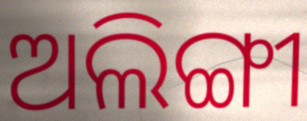
ଅଲିଙ୍ଗୀ